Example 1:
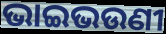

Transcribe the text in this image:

ଭାଇଭଉଣୀ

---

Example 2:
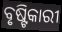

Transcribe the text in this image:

ବୃଷ୍ଟିକାରୀ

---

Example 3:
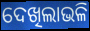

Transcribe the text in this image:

ଦେଖିଲାଭଳି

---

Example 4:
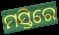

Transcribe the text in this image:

ମସ୍ତିରେ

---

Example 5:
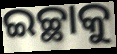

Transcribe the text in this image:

ଇଚ୍ଛାକୁ